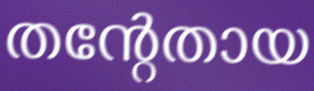
തന്റേതായ